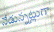
నేడున్నట్లుగా